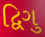
દ્વિગુ